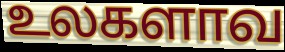
உலகளாவ